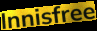
Innisfree